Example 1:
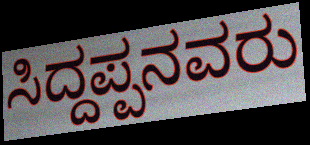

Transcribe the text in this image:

ಸಿದ್ದಪ್ಪನವರು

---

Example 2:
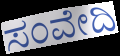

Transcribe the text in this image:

ಸಂವೇದಿ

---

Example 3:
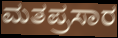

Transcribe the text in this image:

ಮತಪ್ರಸಾರ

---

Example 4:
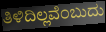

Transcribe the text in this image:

ತಿಳಿದಿಲ್ಲವೆಂಬುದು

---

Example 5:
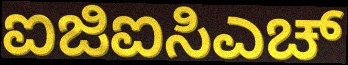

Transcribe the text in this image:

ಐಜಿಐಸಿಎಚ್